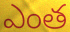
ఎంత